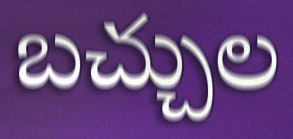
బచ్చుల